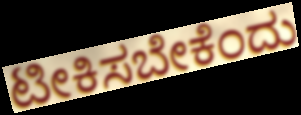
ಟೀಕಿಸಬೇಕೆಂದು